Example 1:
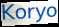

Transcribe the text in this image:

Koryo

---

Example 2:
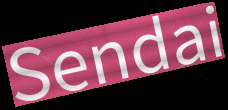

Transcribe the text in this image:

Sendai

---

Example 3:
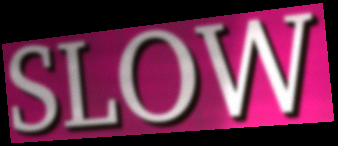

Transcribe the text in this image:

SLOW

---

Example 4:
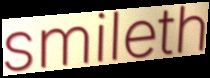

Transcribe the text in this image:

smileth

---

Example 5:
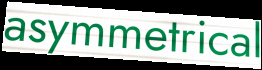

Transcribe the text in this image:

asymmetrical